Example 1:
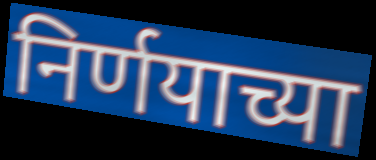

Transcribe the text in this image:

निर्णयाच्या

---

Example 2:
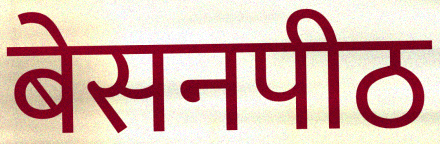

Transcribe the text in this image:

बेसनपीठ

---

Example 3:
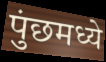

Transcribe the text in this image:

पुंछमध्ये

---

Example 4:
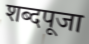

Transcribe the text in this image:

शब्दपूजा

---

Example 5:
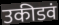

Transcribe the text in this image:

उकीडवं